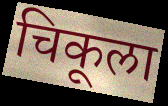
चिकूला